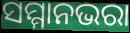
ସମ୍ମାନଭରା